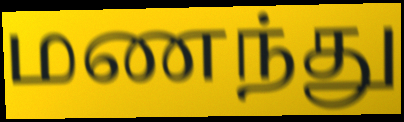
மணந்து